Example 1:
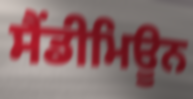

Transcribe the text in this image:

ਸੈਂਡੀਮਿਊਨ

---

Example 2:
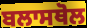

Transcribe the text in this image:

ਬਲਾਸਥੋਲ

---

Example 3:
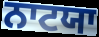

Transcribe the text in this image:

ਨਾਟਯਾ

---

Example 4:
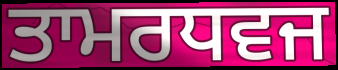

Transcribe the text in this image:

ਤਾਮਰਧਵਜ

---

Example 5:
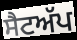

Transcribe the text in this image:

ਸੈਟਅੱਪ